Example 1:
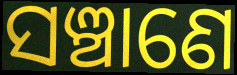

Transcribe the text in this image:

ସଞ୍ଚାଣେ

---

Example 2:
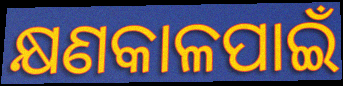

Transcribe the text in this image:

କ୍ଷଣକାଳପାଇଁ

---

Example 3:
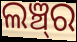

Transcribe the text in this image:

ଲଞ୍ଚ୍‍ର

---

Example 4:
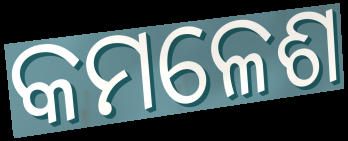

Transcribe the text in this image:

କମଳେଶ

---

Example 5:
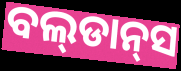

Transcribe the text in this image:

ବଲ୍‌ଡାନ୍‌ସ